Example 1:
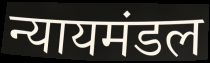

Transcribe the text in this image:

न्यायमंडल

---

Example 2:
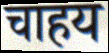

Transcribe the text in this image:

चाहय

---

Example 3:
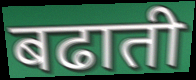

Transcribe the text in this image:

बढाती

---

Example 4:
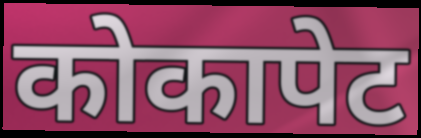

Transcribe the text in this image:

कोकापेट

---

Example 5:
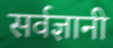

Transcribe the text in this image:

सर्वज्ञानी